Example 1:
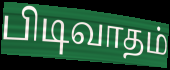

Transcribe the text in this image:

பிடிவாதம்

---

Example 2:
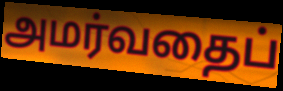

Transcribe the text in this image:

அமர்வதைப்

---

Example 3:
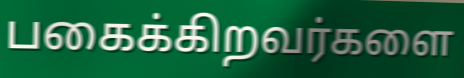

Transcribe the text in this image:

பகைக்கிறவர்களை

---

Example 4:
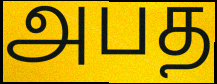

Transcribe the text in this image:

அபத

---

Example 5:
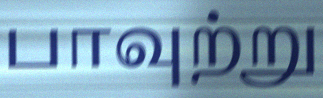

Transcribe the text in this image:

பாவுற்று